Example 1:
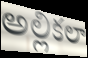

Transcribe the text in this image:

అల్లికలా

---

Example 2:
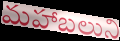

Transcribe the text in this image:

మహాబలుని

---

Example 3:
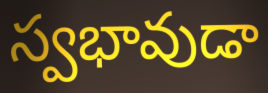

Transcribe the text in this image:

స్వభావుడా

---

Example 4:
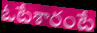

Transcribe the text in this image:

ఓటేశారంటే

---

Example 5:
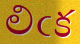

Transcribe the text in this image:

లిఁక